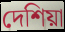
দেশিয়া